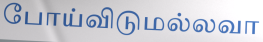
போய்விடுமல்லவா